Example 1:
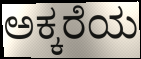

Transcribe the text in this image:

ಅಕ್ಕರೆಯ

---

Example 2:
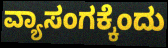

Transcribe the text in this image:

ವ್ಯಾಸಂಗಕ್ಕೆಂದು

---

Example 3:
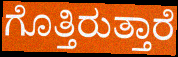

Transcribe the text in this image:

ಗೊತ್ತಿರುತ್ತಾರೆ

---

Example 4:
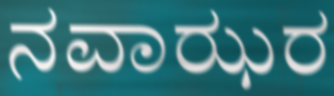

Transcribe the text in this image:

ನವಾಝರ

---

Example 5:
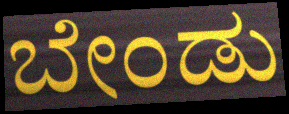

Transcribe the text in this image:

ಬೇಂಡು